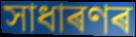
সাধাৰণৰ